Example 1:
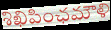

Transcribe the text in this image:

శిఖిపింఛమౌళి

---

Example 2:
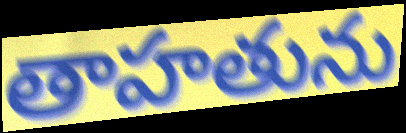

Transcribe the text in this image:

తాహతును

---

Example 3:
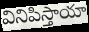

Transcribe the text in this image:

వినిపిస్తాయా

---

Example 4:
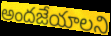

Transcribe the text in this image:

అందజేయాలని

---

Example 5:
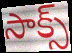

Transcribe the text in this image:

సాక్స్